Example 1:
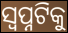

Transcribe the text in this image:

ସ୍ୱପ୍ନଟିକୁ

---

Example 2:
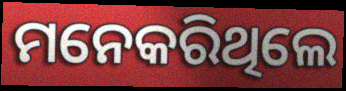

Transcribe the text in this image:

ମନେକରିଥିଲେ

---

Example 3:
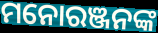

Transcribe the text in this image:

ମନୋରଞ୍ଜନଙ୍କ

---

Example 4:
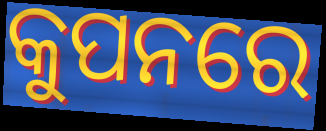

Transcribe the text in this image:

କୁପନରେ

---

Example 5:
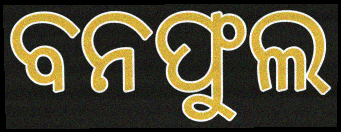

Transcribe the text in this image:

ବନଫୁଲ